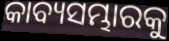
କାବ୍ୟସମ୍ଭାରକୁ